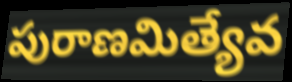
పురాణమిత్యేవ